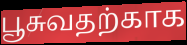
பூசுவதற்காக